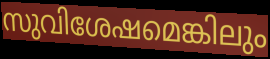
സുവിശേഷമെങ്കിലും